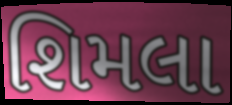
શિમલા